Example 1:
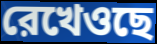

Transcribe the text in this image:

রেখেওছে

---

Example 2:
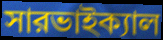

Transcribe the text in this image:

সারভাইক্যাল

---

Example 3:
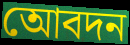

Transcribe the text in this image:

আেবদন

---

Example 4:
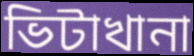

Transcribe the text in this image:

ভিটাখানা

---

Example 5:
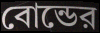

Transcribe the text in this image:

বোন্ডের